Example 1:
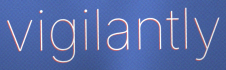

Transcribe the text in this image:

vigilantly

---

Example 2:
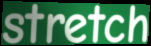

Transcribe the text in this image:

stretch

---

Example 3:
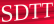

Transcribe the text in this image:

SDTT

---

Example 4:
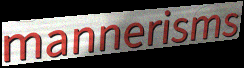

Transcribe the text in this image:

mannerisms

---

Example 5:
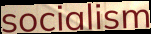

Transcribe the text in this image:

socialism